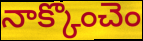
నాక్కొంచెం